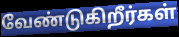
வேண்டுகிறீர்கள்